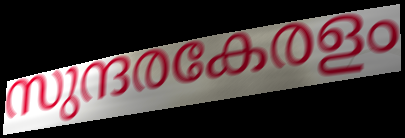
സുന്ദരകേരളം